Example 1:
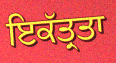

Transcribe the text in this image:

ਇਕੱਤ੍ਰਤਾ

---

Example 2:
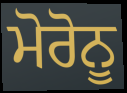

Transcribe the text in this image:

ਮੋਰੋਨੂ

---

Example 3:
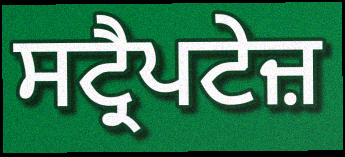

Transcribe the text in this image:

ਸਟ੍ਰੈਪਟੇਜ਼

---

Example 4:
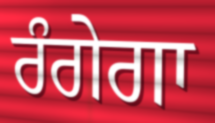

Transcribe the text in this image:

ਰੰਗੇਗਾ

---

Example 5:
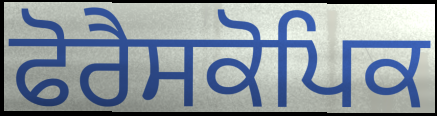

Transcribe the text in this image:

ਫੋਰੈਸਕੋਪਿਕ